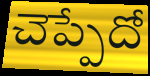
చెప్పేదో